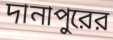
দানাপুরের